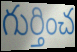
గుర్తించ